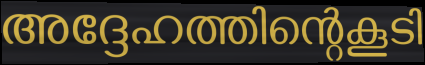
അദ്ദേഹത്തിന്റെകൂടി